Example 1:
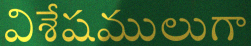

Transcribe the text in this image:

విశేషములుగా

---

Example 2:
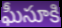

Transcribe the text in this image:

ఘీసూకి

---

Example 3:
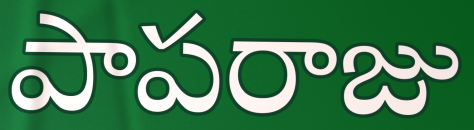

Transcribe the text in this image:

పాపరాజు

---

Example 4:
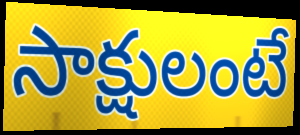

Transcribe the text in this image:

సాక్షులంటే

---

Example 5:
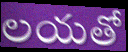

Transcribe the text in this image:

లయతో